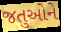
જતુઓને